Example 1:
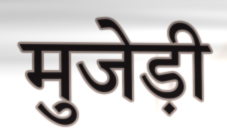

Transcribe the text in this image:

मुजेड़ी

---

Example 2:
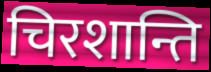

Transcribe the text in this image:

चिरशान्ति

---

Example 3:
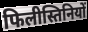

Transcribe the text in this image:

फिलीस्तिनियों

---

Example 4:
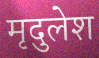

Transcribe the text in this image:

मृदुलेश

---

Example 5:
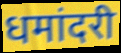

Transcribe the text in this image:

धमांदरी